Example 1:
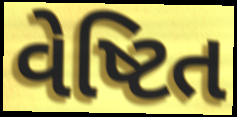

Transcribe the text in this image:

વેષ્ટિત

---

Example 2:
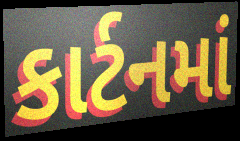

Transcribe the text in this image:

કાર્ટનમાં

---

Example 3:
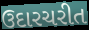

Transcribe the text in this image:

ઉદારચરીત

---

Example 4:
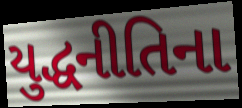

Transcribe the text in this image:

યુદ્ધનીતિના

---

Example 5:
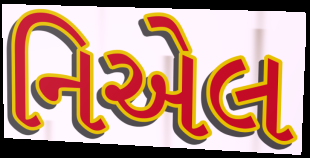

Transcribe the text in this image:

નિએલ